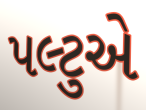
પલ્ટુએ